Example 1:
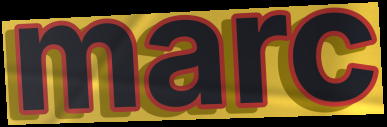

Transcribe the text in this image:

marc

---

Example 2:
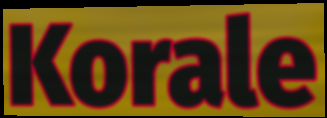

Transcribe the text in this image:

Korale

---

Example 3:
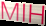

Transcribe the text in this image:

MIH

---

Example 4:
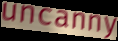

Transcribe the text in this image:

uncanny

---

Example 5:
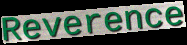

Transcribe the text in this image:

Reverence